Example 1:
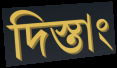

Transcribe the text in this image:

দিস্তাং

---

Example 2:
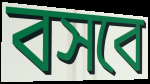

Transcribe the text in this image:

বসবে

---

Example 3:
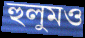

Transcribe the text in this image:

হুলুমও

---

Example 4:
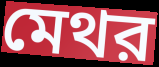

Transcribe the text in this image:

মেথর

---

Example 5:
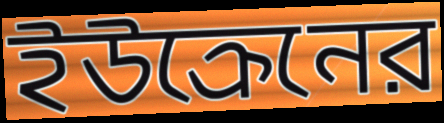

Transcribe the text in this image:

ইউক্রেনের